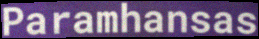
Paramhansas